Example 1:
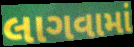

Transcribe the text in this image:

લાગવામાં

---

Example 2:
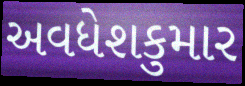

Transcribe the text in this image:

અવધેશકુમાર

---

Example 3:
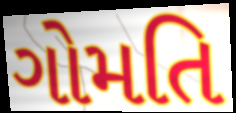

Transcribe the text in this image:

ગોમતિ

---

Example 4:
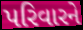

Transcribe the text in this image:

પરિવારને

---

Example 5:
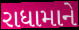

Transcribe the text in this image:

રાધામાને